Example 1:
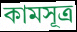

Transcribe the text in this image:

কামসূত্ৰ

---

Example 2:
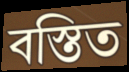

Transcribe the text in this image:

বস্তিত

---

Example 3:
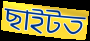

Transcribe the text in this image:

ছাইটত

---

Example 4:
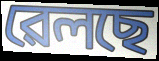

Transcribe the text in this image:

ৱেলছে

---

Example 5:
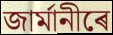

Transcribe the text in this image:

জাৰ্মানীৰে